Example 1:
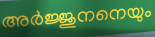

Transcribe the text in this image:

അർജ്ജുനനെയും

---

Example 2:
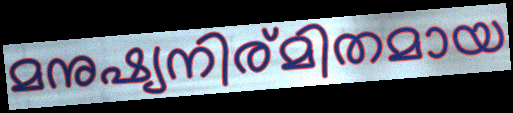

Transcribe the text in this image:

മനുഷ്യനിര്മിതമായ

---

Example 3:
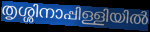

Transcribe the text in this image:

തൃശ്ശിനാപ്പിള്ളിയിൽ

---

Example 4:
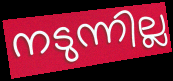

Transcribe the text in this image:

നടുന്നില്ല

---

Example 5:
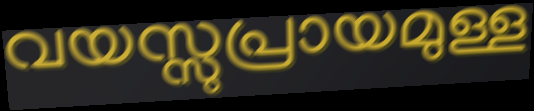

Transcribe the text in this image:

വയസ്സുപ്രായമുള്ള